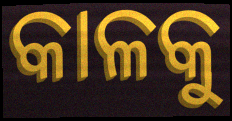
କାଳକୁ